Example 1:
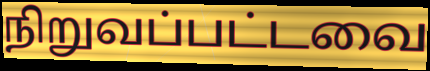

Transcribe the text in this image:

நிறுவப்பட்டவை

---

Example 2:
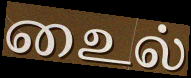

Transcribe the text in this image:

உைல்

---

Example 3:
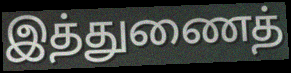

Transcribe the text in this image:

இத்துணைத்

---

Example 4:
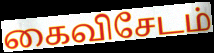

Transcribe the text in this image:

கைவிசேடம்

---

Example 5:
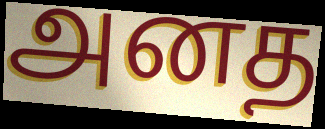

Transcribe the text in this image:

அனத